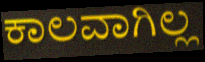
ಕಾಲವಾಗಿಲ್ಲ